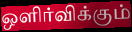
ஒளிர்விக்கும்